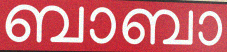
ബാബാ